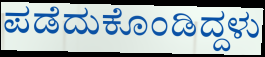
ಪಡೆದುಕೊಂಡಿದ್ದಳು